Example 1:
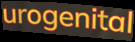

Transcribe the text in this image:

urogenital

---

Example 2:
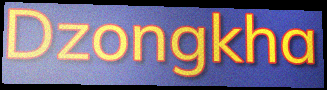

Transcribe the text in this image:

Dzongkha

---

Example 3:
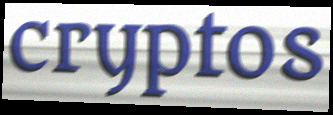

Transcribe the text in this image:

cryptos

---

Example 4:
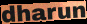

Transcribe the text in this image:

dharun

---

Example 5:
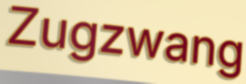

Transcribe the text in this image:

Zugzwang